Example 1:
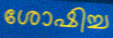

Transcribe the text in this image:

ശോഷിച്ച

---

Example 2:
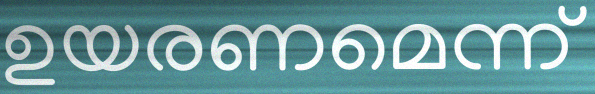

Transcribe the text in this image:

ഉയരണമെന്ന്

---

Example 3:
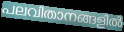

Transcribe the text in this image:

പലവിതാനങ്ങളിൽ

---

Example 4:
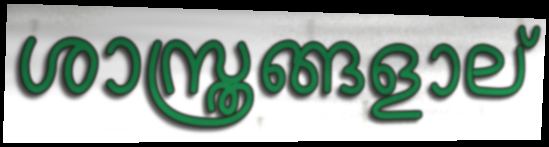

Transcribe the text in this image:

ശാസ്ത്രങ്ങളാല്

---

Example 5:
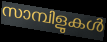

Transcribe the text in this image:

സാമ്പിളുകൾ